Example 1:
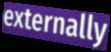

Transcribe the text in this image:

externally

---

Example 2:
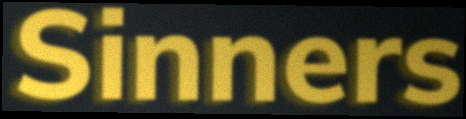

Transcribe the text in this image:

Sinners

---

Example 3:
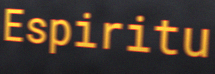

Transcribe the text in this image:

Espiritu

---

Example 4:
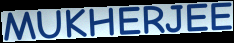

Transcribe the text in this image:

MUKHERJEE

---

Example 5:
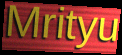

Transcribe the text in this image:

Mrityu